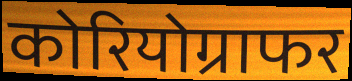
कोरियोग्राफर